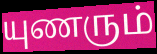
யுணரும்